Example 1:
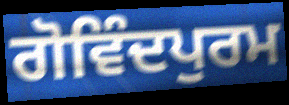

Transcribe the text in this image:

ਗੋਵਿੰਦਪੁਰਮ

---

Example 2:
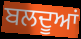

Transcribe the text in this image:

ਬਲਦੂਆਂ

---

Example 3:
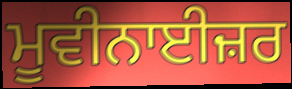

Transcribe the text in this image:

ਮੂਵੀਨਾਈਜ਼ਰ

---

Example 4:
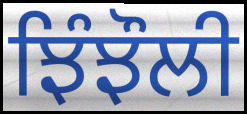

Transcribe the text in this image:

ਝਿੰਝੌਲੀ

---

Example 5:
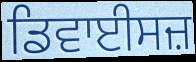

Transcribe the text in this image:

ਡਿਵਾਈਸਜ਼